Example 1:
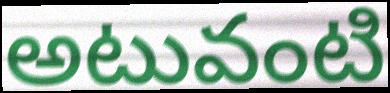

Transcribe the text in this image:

అటువంటి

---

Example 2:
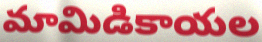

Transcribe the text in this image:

మామిడికాయల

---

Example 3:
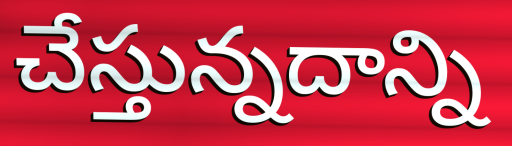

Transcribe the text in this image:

చేస్తున్నదాన్ని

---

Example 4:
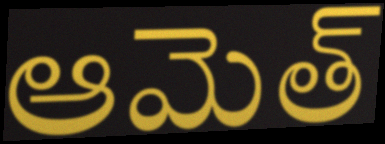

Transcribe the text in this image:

ఆమెత్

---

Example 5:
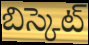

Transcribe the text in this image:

బిస్కెట్